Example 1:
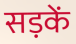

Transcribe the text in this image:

सड़कें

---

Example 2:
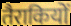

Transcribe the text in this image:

तैराकियों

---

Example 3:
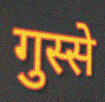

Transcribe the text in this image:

गुस्से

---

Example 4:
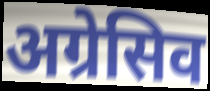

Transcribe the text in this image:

अग्रेसिव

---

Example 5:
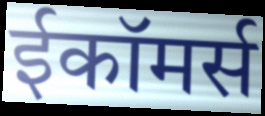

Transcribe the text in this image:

ईकॉमर्स